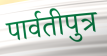
पार्वतीपुत्र